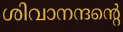
ശിവാനന്ദന്റെ